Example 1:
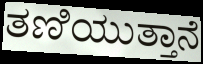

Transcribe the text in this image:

ತಣಿಯುತ್ತಾನೆ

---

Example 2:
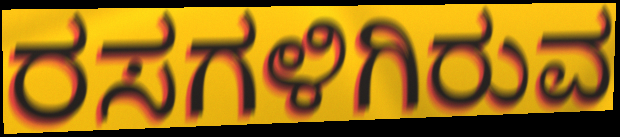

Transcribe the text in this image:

ರಸಗಳಿಗಿರುವ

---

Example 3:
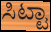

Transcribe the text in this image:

ಸಿಟ್ಟಾ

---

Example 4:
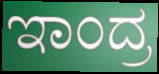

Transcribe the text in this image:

ಇಾಂದ್ರ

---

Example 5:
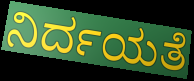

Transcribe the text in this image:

ನಿರ್ದಯತೆ